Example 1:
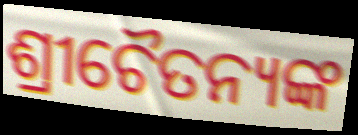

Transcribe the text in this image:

ଶ୍ରୀଚୈତନ୍ୟଙ୍କ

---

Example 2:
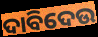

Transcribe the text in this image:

ଦାବିଦେଉ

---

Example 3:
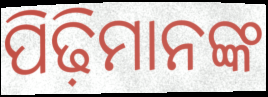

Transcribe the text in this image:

ପିଢ଼ିମାନଙ୍କ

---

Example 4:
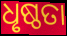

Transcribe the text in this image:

ଧୃଷ୍ଠତା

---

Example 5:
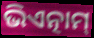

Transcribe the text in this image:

ଭିଏତ୍ନାମ୍